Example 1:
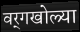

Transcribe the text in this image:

वर्गखोल्या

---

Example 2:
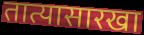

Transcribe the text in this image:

तात्यासारखा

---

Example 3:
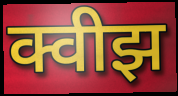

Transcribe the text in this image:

क्वीझ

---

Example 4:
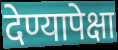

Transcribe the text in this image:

देण्यापेक्षा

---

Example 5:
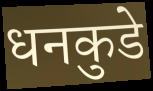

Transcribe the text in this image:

धनकुडे